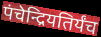
पंचेन्द्रियतिर्यंच